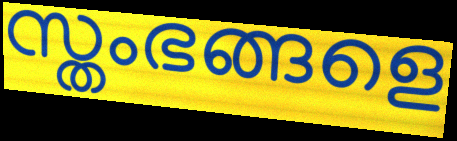
സ്തംഭങ്ങളെ